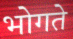
भोगते